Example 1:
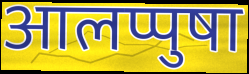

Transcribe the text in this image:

आलप्पुषा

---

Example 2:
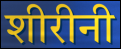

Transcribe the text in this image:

शीरीनी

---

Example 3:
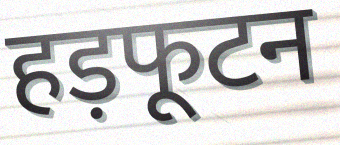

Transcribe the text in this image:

हड़फूटन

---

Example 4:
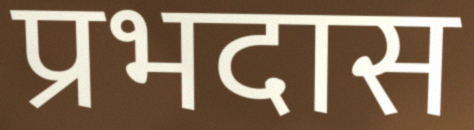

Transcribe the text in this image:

प्रभदास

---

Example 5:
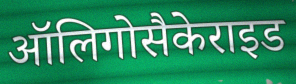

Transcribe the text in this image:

ऑलिगोसैकेराइड